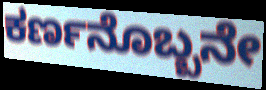
ಕರ್ಣನೊಬ್ಬನೇ